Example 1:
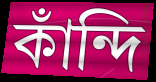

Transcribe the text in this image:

কাঁন্দি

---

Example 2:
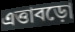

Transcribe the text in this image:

এত্তাবড়ো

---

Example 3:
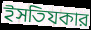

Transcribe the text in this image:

ইসতিযকার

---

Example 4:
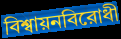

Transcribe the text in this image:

বিশ্বায়নবিরোধী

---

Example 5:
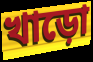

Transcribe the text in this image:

খাড়ো